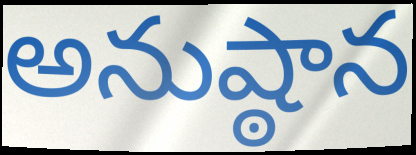
అనుష్ఠాన